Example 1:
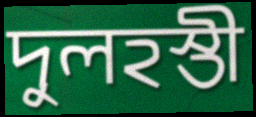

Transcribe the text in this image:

দুলহস্তী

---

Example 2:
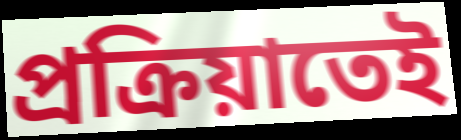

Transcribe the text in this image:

প্রক্রিয়াতেই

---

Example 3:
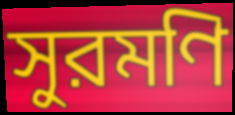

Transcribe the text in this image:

সুরমণি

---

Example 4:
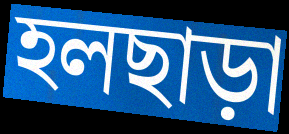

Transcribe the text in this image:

হলছাড়া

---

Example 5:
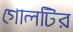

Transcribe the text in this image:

গোলটির